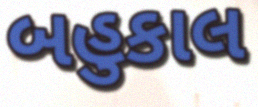
બહુકાલ